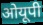
ओयूपी